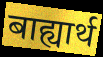
बाह्यार्थ